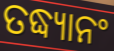
ତଦ୍ଧ୍ଯାନଂ